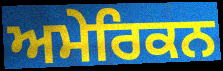
ਅਮੇਰਿਕਨ